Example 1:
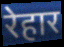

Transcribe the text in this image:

रेहार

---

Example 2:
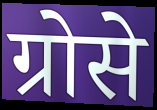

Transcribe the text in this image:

ग्रोसे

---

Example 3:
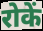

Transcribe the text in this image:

रोकें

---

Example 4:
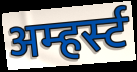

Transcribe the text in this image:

अम्हर्स्ट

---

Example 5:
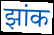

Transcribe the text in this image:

झांक